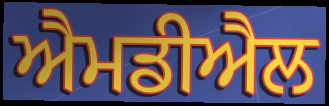
ਐਮਡੀਐਲ